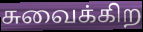
சுவைக்கிற